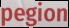
pegion